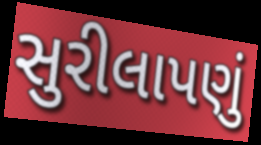
સુરીલાપણું